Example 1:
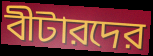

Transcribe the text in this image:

বীটারদের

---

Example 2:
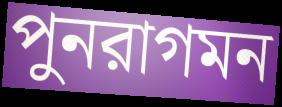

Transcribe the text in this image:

পুনরাগমন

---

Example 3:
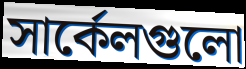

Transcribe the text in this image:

সার্কেলগুলো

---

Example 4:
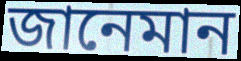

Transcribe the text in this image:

জানেমান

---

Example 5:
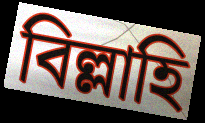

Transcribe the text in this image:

বিল্লাহি